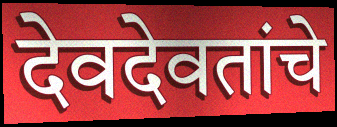
देवदेवतांचे